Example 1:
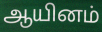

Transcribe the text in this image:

ஆயினம்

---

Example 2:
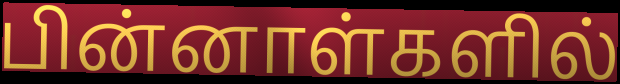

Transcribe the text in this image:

பின்னாள்களில்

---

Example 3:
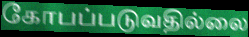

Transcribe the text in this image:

கோபப்படுவதில்லை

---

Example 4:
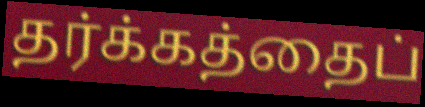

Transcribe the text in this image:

தர்க்கத்தைப்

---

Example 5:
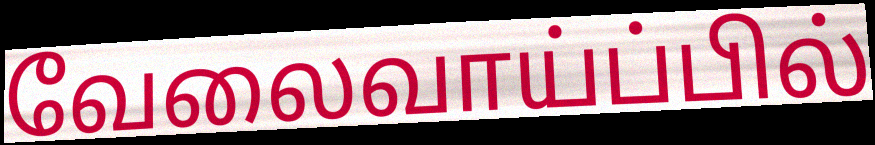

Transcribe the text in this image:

வேலைவாய்ப்பில்